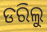
ଡରିଲୁ